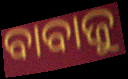
ବାବାଜୁ